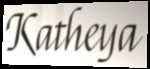
Katheya